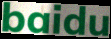
baidu